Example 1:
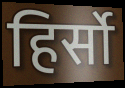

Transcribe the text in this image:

हिर्सो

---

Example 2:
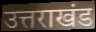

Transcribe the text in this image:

उत्तराखंड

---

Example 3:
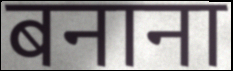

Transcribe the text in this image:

बनाना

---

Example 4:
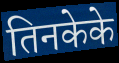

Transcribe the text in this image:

तिनकेके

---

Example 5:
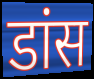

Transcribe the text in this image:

डांस